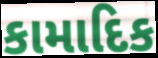
કામાદિક